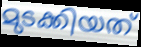
മുടക്കിയത്